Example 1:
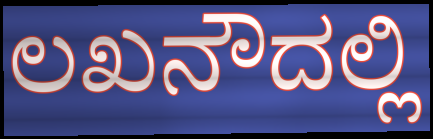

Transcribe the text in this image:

ಲಖನೌದಲ್ಲಿ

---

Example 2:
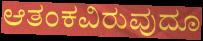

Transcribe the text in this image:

ಆತಂಕವಿರುವುದೂ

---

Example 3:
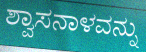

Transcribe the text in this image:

ಶ್ವಾಸನಾಳವನ್ನು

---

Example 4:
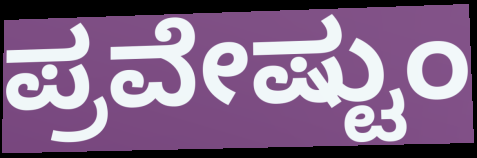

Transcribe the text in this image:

ಪ್ರವೇಷ್ಟುಂ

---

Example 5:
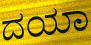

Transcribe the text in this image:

ದಯಾ